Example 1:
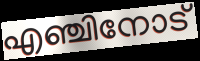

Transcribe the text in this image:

എഞ്ചിനോട്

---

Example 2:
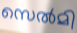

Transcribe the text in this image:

സെൽമി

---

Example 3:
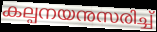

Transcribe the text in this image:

കല്പനയനുസരിച്ച്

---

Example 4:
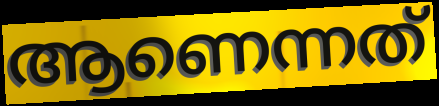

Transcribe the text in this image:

ആണെന്നത്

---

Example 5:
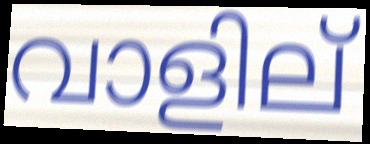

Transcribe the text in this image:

വാളില്